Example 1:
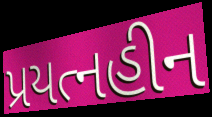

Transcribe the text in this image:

પ્રયત્નહીન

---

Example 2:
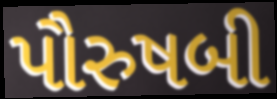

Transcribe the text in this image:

પૌરુષબી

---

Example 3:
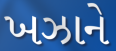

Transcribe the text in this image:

ખઝાને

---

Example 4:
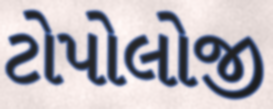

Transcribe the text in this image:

ટોપોલોજી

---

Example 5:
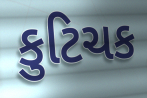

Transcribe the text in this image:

કુટિચક